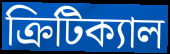
ক্রিটিক্যাল